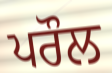
ਪਰੌਲ